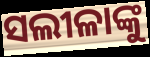
ସଲୀଳାଙ୍କୁ